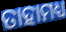
ତାହାମଧ୍ୟ